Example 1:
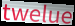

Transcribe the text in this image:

twelue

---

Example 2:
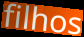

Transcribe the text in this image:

filhos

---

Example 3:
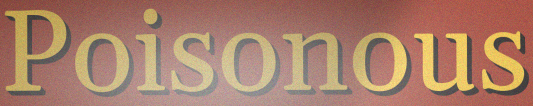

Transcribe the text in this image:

Poisonous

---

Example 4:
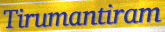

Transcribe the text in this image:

Tirumantiram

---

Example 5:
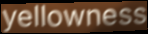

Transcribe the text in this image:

yellowness